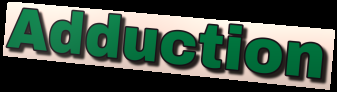
Adduction